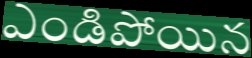
ఎండిపోయిన